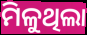
ମିଳୁଥିଲା